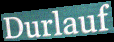
Durlauf